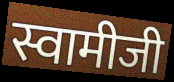
स्वामीजी